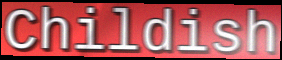
Childish